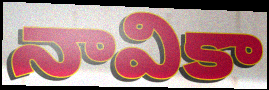
నావికా